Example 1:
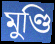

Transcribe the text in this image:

মুণ্ডি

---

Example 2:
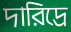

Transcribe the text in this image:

দারিদ্রে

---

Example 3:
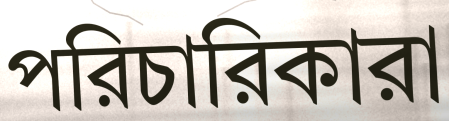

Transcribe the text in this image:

পরিচারিকারা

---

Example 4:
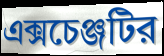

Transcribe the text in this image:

এক্সচেঞ্জটির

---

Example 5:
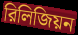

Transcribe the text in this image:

রিলিজিয়ন